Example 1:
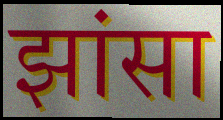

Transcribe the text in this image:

झांसा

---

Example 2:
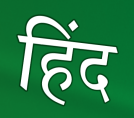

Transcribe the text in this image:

हिंद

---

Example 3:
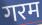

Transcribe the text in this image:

गरम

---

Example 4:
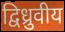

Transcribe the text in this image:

द्विध्रुवीय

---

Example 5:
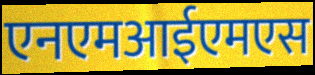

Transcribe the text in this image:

एनएमआईएमएस